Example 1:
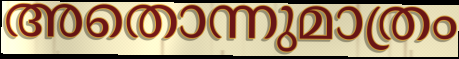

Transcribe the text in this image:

അതൊന്നുമാത്രം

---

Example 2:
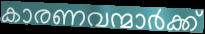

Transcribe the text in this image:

കാരണവന്മാർക്ക്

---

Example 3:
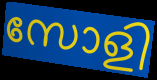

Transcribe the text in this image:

സോളി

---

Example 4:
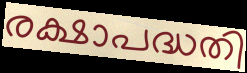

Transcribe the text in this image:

രക്ഷാപദ്ധതി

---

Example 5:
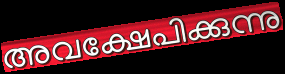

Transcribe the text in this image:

അവക്ഷേപിക്കുന്നു